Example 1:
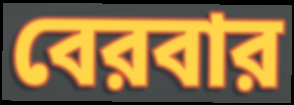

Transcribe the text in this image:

বেরবার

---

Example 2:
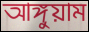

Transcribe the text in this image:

আঙ্গুয়াম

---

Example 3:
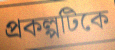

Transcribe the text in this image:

প্রকল্পটিকে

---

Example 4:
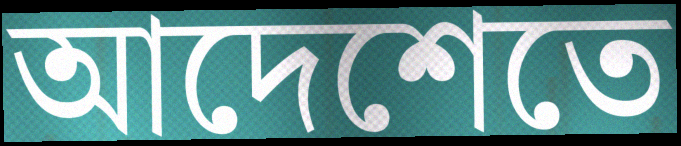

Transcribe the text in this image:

আদেশেতে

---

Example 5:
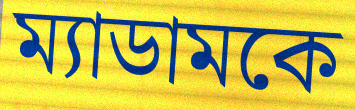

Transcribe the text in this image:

ম্যাডামকে